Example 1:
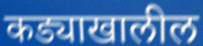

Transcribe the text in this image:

कड्याखालील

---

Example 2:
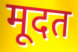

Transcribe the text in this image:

मूदत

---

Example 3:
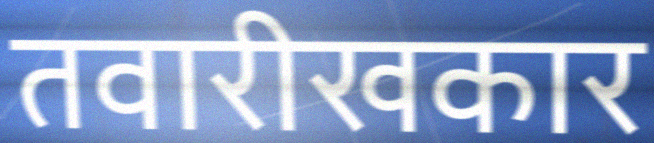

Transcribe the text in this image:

तवारीखकार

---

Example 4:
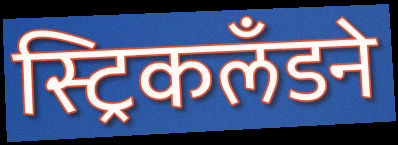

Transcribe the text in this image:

स्ट्रिकलँडने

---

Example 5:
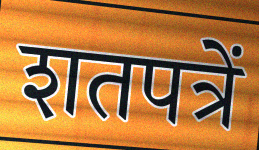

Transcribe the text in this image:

शतपत्रें